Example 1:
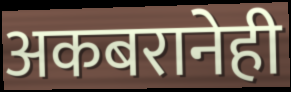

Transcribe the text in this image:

अकबरानेही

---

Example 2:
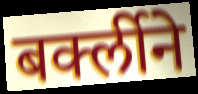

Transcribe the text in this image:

बर्क्लीने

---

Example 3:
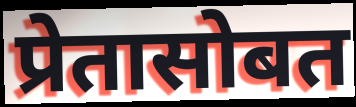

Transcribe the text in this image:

प्रेतासोबत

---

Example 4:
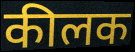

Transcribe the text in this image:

कीलक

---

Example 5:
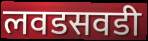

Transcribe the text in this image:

लवडसवडी